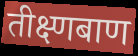
तीक्ष्णबाण